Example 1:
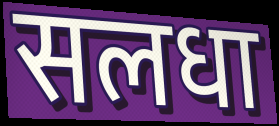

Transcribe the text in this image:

सलधा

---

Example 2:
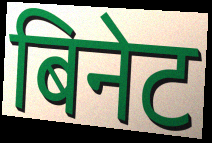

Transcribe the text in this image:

बिनेट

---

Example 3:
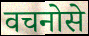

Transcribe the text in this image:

वचनोसे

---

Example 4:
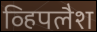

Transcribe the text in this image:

व्हिपलैश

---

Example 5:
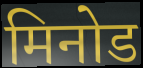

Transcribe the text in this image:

मिनोड